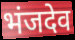
भंजदेव